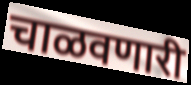
चाळवणारी